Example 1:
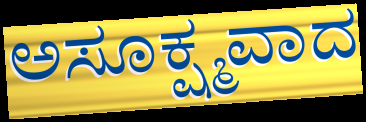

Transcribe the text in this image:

ಅಸೂಕ್ಷ್ಮವಾದ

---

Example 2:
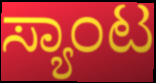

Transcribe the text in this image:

ಸ್ಯಾಂಟ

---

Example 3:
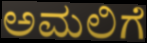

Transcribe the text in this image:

ಅಮಲಿಗೆ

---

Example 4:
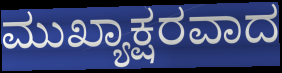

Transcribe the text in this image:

ಮುಖ್ಯಾಕ್ಷರವಾದ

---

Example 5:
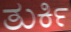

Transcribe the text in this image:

ತುರ್ಕಿ